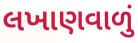
લખાણવાળું